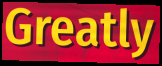
Greatly